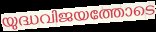
യുദ്ധവിജയത്തോടെ